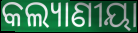
କଲ୍ୟାଣୀୟା